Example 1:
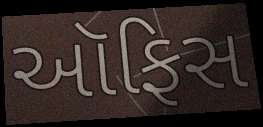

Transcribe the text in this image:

આૅફિસ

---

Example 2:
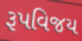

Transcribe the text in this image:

રૂપવિજય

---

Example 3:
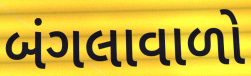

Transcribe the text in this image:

બંગલાવાળો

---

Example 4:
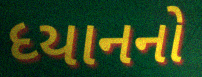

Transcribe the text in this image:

ધ્યાનનો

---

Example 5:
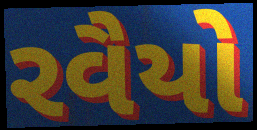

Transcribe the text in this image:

રવૈયો